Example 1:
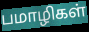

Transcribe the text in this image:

பமாழிகள்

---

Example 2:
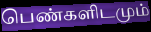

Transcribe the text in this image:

பெண்களிடமும்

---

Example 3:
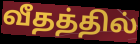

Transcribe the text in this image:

வீதத்தில்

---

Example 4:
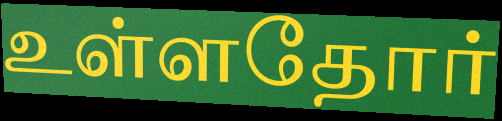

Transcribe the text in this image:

உள்ளதோர்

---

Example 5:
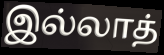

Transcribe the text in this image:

இல்லாத்